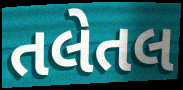
તલેતલ